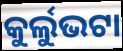
କୁର୍ଲୁଭଟା